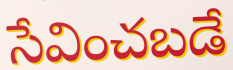
సేవించబడే